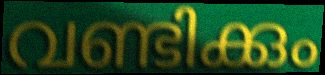
വണ്ടിക്കും